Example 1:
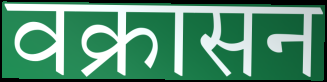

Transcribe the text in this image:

वक्रासन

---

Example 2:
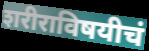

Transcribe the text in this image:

शरीराविषयीचं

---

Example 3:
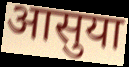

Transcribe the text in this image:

आसुया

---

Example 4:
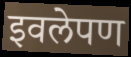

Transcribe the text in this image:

इवलेपण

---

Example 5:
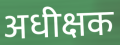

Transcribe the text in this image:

अधीक्षक